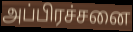
அப்பிரச்சனை